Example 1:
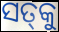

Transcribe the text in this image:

ସତ୍‌କୁ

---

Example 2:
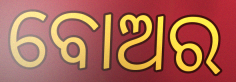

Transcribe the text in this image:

ବୋଅର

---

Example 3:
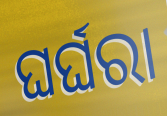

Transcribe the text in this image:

ଘର୍ଘରା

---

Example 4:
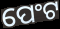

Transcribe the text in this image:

ପେଂଟ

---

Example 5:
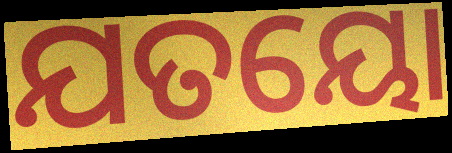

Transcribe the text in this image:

ଯତୟୋ